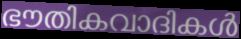
ഭൗതികവാദികൾ